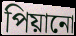
পিয়ানো